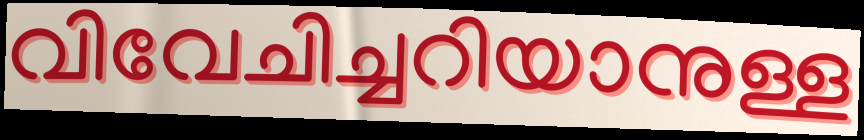
വിവേചിച്ചറിയാനുള്ള